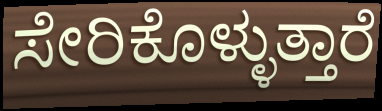
ಸೇರಿಕೊಳ್ಳುತ್ತಾರೆ